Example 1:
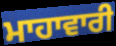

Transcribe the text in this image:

ਮਾਹਾਵਾਰੀ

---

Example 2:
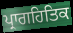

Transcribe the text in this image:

ਪ੍ਰਾਗਹਿਤਿਕ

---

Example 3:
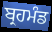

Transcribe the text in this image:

ਬ੍ਰਹਮੰਡ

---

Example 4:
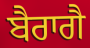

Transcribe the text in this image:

ਬੈਰਾਗੈ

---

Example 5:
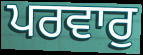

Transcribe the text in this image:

ਪਰਵਾਰੁ